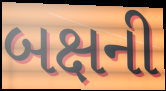
બક્ષની